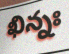
ఖిన్నః